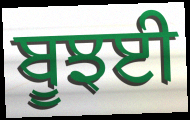
ਬੂਝਈ